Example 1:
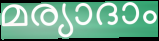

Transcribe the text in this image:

മര്യാദാം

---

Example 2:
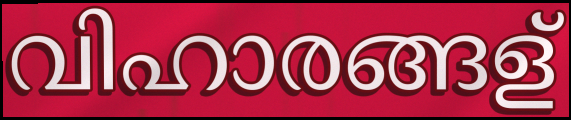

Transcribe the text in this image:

വിഹാരങ്ങള്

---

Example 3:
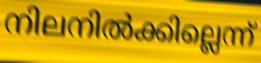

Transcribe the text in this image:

നിലനിൽക്കില്ലെന്ന്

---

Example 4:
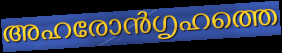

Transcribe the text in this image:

അഹരോൻഗൃഹത്തെ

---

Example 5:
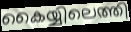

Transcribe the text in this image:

കൈയ്യിലെത്തി